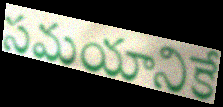
సమయానికే